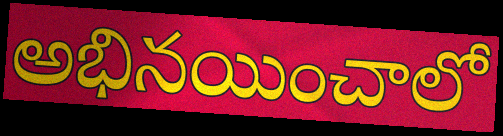
అభినయించాలో